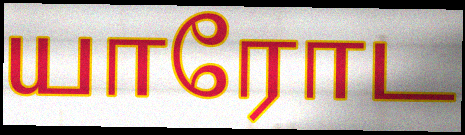
யாரோட